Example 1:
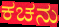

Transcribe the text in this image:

ಕಚನು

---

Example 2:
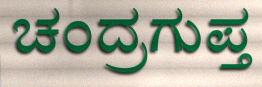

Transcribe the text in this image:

ಚಂದ್ರಗುಪ್ತ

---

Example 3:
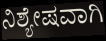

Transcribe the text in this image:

ನಿಶ್ಯೇಷವಾಗಿ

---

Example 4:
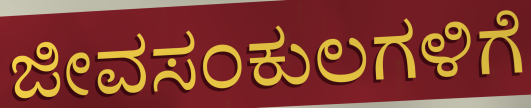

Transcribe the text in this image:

ಜೀವಸಂಕುಲಗಳಿಗೆ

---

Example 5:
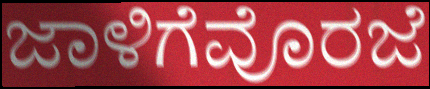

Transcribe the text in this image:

ಜಾಳಿಗೆವೊರಜೆ